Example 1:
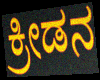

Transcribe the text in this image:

ಕ್ರೀಡನ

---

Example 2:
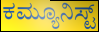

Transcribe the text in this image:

ಕಮ್ಯೂನಿಸ್ಟ್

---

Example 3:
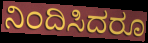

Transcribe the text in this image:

ನಿಂದಿಸಿದರೂ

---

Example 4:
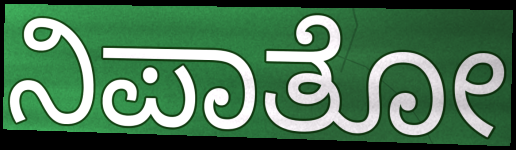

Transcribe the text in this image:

ನಿಪಾತೋ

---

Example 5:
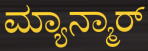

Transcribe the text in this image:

ಮ್ಯಾನ್ಮಾರ್